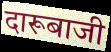
दारूबाजी